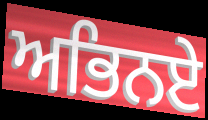
ਅਭਿਨਏ